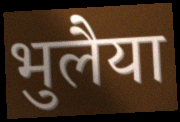
भुलैया